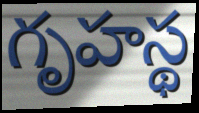
గృహస్థ